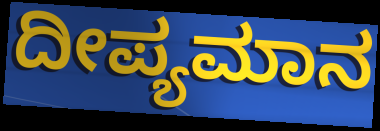
ದೀಪ್ಯಮಾನ